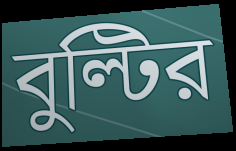
বুল্টির